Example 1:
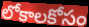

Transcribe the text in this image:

లోకాలకోసం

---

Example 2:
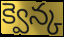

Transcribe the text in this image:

క్వెన్క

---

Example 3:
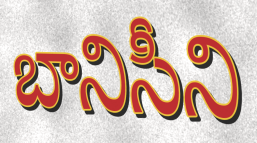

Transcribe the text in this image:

బానిసీని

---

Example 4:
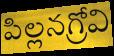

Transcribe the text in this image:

పిల్లనగ్రోవి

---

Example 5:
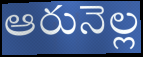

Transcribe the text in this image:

ఆరునెల్ల